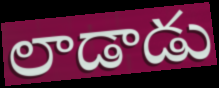
లాడాడు